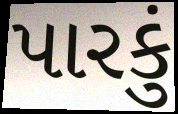
પારકું